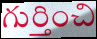
గుర్తించి